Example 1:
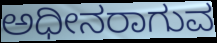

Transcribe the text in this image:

ಅಧೀನರಾಗುವ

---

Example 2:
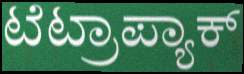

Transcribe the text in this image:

ಟೆಟ್ರಾಪ್ಯಾಕ್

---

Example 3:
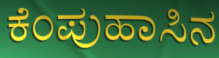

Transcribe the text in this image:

ಕೆಂಪುಹಾಸಿನ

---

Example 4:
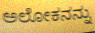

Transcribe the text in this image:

ಅಲೋಕನನ್ನು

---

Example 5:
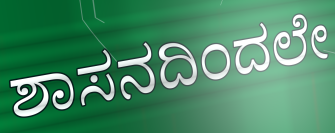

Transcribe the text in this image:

ಶಾಸನದಿಂದಲೇ